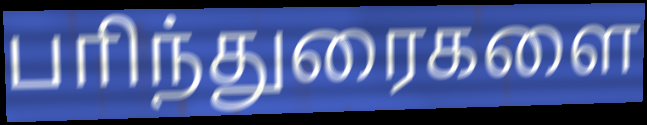
பரிந்துரைகளை